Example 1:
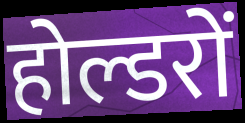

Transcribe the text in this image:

होल्‍डरों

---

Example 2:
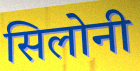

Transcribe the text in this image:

सिलोनी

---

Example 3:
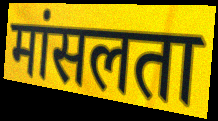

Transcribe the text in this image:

मांसलता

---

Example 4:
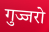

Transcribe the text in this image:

गुज्जरो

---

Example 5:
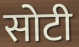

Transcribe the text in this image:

सोटी